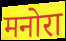
मनोरा